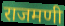
राजमणी